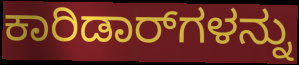
ಕಾರಿಡಾರ್‌ಗಳನ್ನು